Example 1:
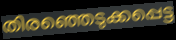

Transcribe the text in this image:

തിരഞ്ഞെടുക്കപ്പെട്ട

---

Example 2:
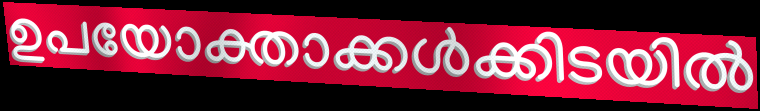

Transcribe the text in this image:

ഉപയോക്താക്കൾക്കിടയിൽ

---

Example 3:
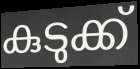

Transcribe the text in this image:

കുടുക്ക്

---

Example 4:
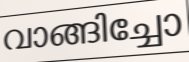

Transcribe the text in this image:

വാങ്ങിച്ചോ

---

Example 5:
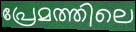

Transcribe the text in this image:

പ്രേമത്തിലെ